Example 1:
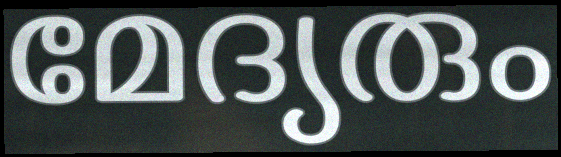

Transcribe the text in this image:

മേദ്യരും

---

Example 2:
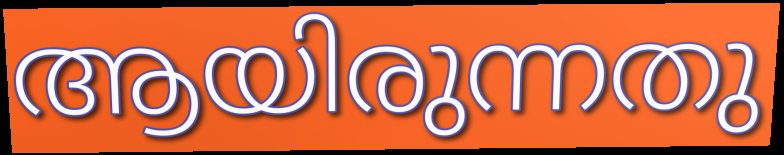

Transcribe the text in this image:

ആയിരുന്നതു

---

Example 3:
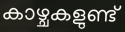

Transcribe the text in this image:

കാഴ്ചകളുണ്ട്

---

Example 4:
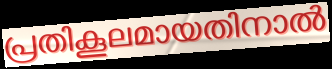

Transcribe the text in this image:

പ്രതികൂലമായതിനാൽ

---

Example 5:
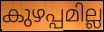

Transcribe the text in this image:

കുഴപ്പമില്ല